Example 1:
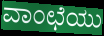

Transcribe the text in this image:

ವಾಂಛೆಯು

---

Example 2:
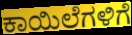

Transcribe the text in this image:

ಕಾಯಿಲೆಗಳಿಗೆ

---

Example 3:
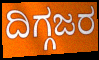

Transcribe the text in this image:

ದಿಗ್ಗಜರ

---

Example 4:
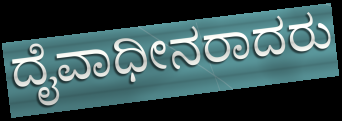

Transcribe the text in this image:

ದೈವಾಧೀನರಾದರು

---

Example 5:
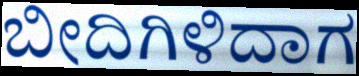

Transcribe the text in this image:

ಬೀದಿಗಿಳಿದಾಗ